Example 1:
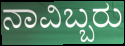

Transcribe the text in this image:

ನಾವಿಬ್ಬರು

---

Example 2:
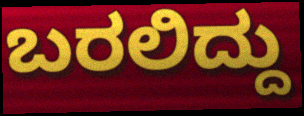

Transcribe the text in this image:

ಬರಲಿದ್ದು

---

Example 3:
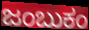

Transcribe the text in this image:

ಜಂಬುಕಂ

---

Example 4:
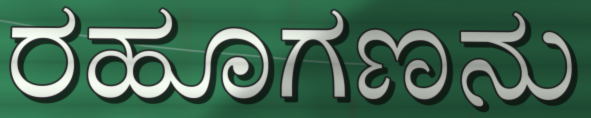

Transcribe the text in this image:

ರಹೂಗಣನು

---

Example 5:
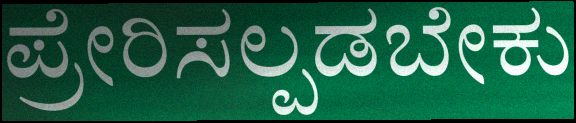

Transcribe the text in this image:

ಪ್ರೇರಿಸಲ್ಪಡಬೇಕು